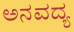
ಅನವದ್ಯ